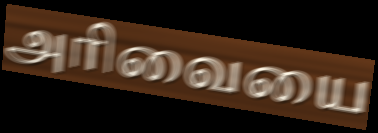
அரிவையை